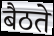
बैठते